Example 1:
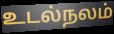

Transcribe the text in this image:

உடல்நலம்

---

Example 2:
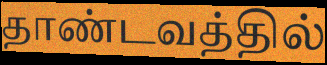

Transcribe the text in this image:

தாண்டவத்தில்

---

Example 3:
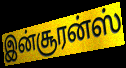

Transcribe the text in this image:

இன்சூரன்ஸ்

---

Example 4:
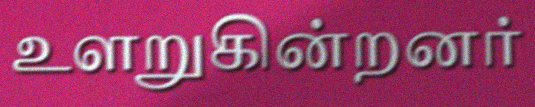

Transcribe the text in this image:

உளறுகின்றனர்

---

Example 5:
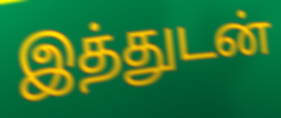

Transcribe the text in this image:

இத்துடன்